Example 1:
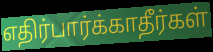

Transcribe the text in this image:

எதிர்பார்க்காதீர்கள்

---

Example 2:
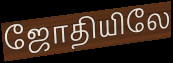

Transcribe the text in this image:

ஜோதியிலே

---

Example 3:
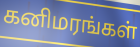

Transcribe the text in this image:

கனிமரங்கள்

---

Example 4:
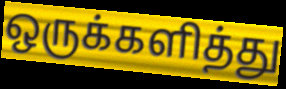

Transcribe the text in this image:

ஒருக்களித்து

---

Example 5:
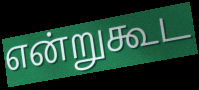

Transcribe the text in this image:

என்றுகூட